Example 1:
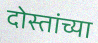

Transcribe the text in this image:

दोस्तांच्या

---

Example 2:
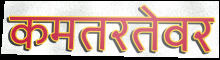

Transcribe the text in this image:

कमतरतेवर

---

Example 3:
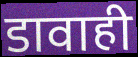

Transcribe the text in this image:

डावाही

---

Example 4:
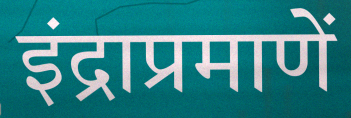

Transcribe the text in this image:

इंद्राप्रमाणें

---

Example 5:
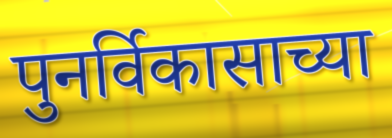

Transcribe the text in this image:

पुनर्विकासाच्या